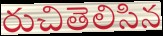
రుచితెలిసిన